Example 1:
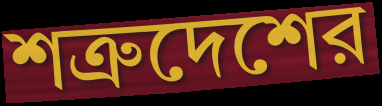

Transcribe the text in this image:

শত্রুদেশের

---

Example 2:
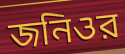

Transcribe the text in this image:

জনিওর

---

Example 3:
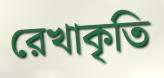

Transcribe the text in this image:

রেখাকৃতি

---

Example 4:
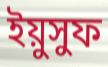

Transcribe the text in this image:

ইয়ুসুফ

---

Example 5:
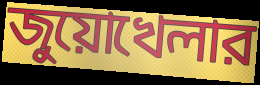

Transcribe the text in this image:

জুয়োখেলার